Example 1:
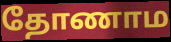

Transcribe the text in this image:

தோணாம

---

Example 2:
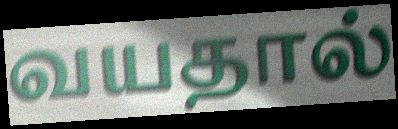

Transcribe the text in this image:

வயதால்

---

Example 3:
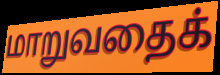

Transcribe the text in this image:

மாறுவதைக்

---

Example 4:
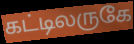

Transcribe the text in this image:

கட்டிலருகே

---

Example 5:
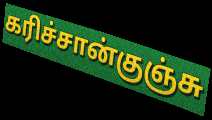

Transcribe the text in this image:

கரிச்சான்குஞ்சு